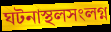
ঘটনাস্থলসংলগ্ন